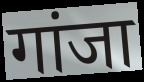
गांजा